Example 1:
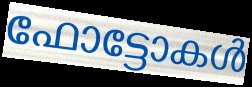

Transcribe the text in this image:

ഫോട്ടോകൾ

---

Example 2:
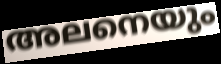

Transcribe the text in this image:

അലനെയും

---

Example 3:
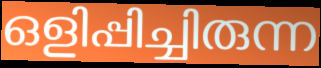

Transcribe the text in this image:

ഒളിപ്പിച്ചിരുന്ന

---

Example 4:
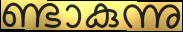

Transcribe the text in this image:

ണ്ടാകുന്നു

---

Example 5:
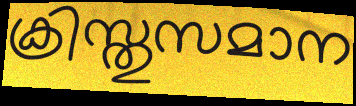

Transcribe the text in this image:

ക്രിസ്തുസമാന